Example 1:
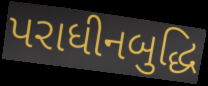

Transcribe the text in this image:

પરાધીનબુદ્ધિ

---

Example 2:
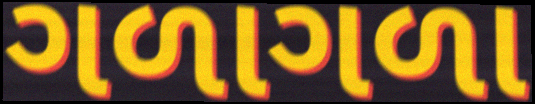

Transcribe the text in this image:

ગળાગળા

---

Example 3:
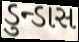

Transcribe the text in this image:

ડુન્ડાસ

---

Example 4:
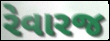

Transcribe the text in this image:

રેવારજ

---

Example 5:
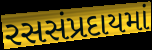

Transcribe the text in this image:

રસસંપ્રદાયમાં